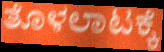
ತೊಳಲಾಟಕ್ಕೆ